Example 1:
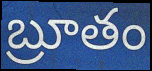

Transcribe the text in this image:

బ్రూతం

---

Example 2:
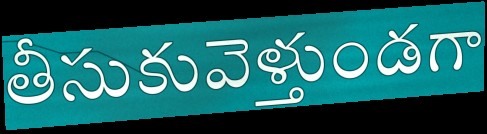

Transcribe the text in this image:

తీసుకువెళ్తుండగా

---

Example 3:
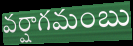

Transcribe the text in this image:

వర్షాగమంబు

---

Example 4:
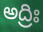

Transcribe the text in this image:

అద్రిః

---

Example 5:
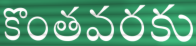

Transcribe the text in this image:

కొంతవరకు